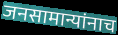
जनसामान्यांनाच